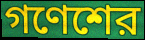
গণেশের